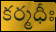
కర్మధీః